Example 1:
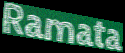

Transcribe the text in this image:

Ramata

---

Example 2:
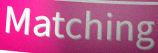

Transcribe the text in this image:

Matching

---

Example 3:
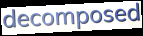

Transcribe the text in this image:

decomposed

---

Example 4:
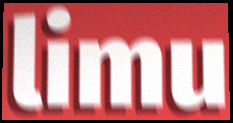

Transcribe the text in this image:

limu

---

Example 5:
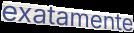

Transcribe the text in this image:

exatamente